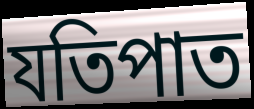
যতিপাত